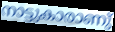
നാട്ടുകാരാണു്